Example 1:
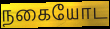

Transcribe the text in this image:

நகையோட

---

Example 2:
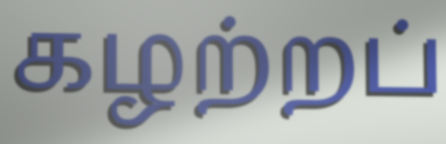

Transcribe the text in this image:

கழற்றப்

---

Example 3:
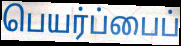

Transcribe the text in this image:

பெயர்ப்பைப்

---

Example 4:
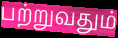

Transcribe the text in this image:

பற்றுவதும்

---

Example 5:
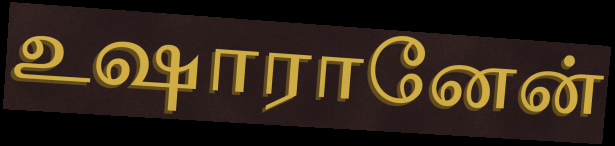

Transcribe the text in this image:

உஷாரானேன்